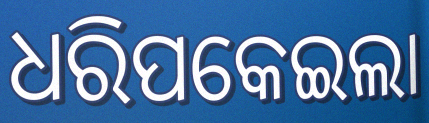
ଧରିପକେଇଲା